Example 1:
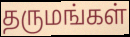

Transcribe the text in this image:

தருமங்கள்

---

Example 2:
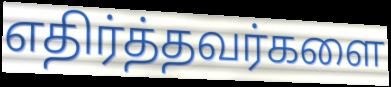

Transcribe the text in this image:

எதிர்த்தவர்களை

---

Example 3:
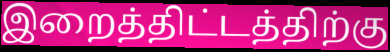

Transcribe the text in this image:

இறைத்திட்டத்திற்கு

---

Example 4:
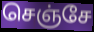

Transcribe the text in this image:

செஞ்சே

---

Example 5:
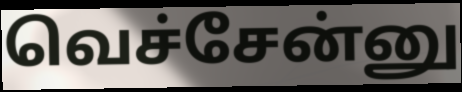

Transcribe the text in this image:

வெச்சேன்னு